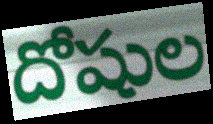
దోషుల